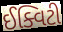
ઈક્વિટી